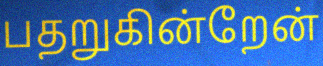
பதறுகின்றேன்